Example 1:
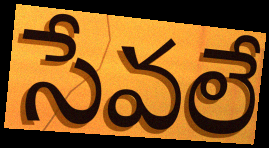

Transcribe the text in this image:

సేవలే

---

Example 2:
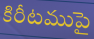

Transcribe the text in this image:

కిరీటముపై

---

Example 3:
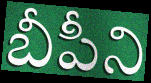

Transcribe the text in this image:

బీపీని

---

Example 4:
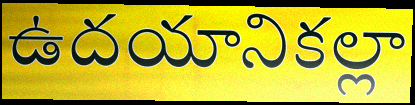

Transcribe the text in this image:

ఉదయానికల్లా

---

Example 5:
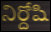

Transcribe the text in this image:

నిర్దోషి